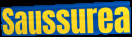
Saussurea